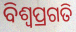
ବିଶ୍ବପ୍ରଗତି